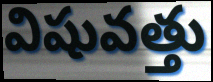
విషువత్తు